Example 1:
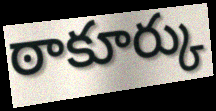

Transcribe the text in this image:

ఠాకూర్కు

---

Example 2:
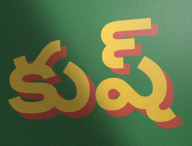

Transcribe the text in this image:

కుష్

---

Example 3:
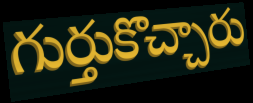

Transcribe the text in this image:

గుర్తుకొచ్చారు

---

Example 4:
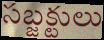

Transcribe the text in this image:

సబ్జక్టులు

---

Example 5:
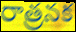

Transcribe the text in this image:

రాత్రనక